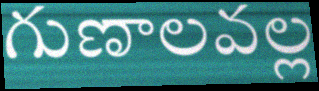
గుణాలవల్ల